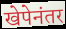
खेपेनंतर